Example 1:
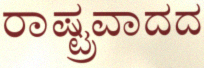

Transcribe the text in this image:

ರಾಷ್ಟ್ರವಾದದ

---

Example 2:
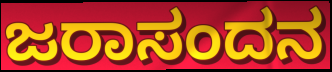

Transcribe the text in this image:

ಜರಾಸಂದನ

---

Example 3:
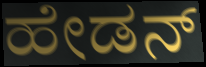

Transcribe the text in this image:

ಹೇಡನ್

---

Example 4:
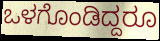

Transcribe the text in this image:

ಒಳಗೊಂಡಿದ್ದರೂ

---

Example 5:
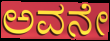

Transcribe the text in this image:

ಅವನೇ